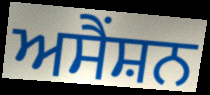
ਅਸੈਂਸ਼ਨ